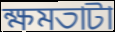
ক্ষমতাটা